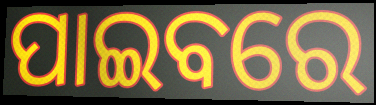
ପାଇବରେ